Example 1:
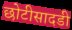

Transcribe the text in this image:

छोटीसादडी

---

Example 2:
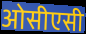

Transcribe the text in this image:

ओसीएसी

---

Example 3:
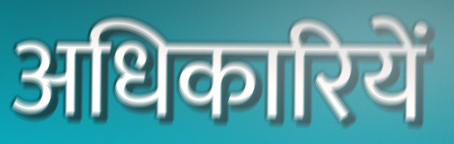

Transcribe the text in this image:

अधिकारियें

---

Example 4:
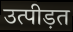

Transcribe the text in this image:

उत्पीड़त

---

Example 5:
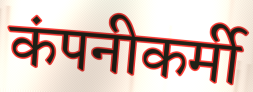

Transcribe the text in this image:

कंपनीकर्मी